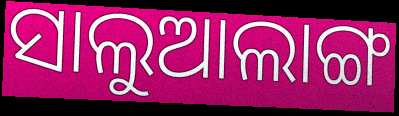
ସାଲୁଆଲାଙ୍ଗ